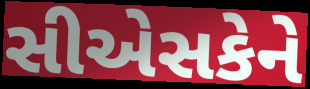
સીએસકેને